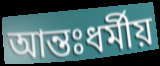
আন্তঃধর্মীয়